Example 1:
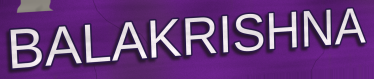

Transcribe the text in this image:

BALAKRISHNA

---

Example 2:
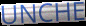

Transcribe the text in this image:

UNCHE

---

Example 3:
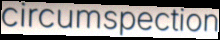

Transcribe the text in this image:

circumspection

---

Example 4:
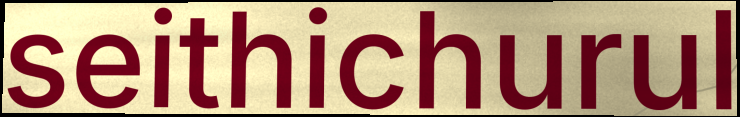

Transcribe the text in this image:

seithichurul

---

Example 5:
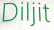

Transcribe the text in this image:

Diljit